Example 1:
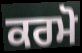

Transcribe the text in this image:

ਕਰਮੋ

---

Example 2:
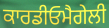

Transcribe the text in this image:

ਕਾਰਡੀਓਮੈਗੇਲੀ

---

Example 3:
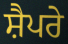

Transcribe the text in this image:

ਸ਼ੈਪਰੇ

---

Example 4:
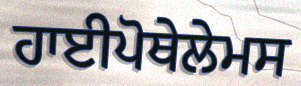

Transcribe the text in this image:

ਹਾਈਪੋਥੇਲੇਮਸ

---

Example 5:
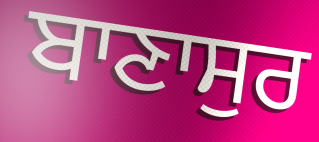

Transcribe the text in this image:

ਬਾਣਾਸੁਰ